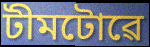
টীমটোৱে